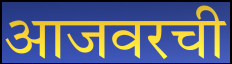
आजवरची